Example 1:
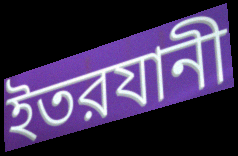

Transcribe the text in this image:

ইতরযানী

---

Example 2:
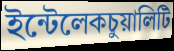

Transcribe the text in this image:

ইন্টেলেকচুয়ালিটি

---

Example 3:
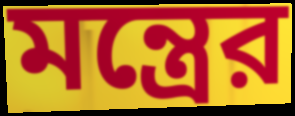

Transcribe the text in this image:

মন্ত্রের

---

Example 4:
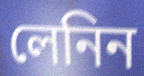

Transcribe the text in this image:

লেনিন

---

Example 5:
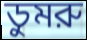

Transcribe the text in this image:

ডুমরু